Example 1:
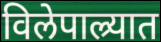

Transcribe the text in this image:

विलेपाल्र्यात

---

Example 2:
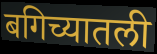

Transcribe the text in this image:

बगिच्यातली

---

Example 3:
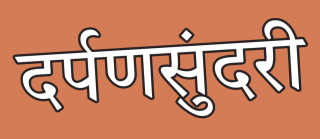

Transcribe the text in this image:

दर्पणसुंदरी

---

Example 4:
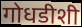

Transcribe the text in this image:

गोधडीशी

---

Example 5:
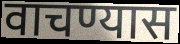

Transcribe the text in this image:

वाचण्यास